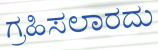
ಗ್ರಹಿಸಲಾರದು